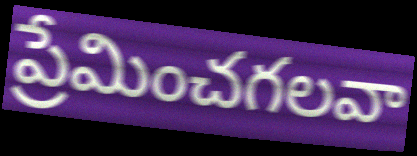
ప్రేమించగలవా